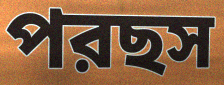
পরছস